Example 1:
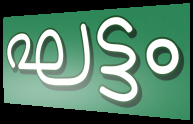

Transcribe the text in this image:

ഘട്ടം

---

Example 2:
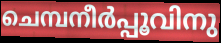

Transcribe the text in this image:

ചെമ്പനീർപ്പൂവിനു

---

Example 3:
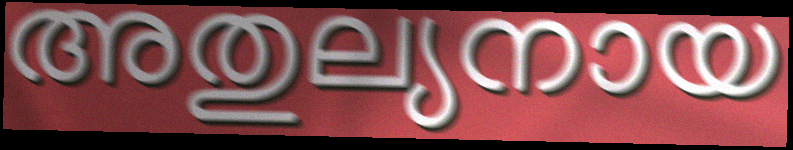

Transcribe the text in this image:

അതുല്യനായ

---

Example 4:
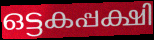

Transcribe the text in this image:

ഒട്ടകപ്പക്ഷി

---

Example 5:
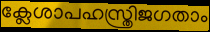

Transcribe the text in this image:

ക്ലേശാപഹസ്ത്രിജഗതാം